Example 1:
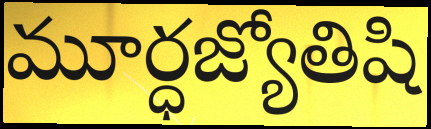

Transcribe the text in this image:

మూర్ధజ్యోతిషి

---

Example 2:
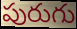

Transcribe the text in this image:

పురుగు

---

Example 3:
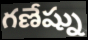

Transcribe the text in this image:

గణేష్ను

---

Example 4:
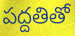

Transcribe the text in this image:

పద్దతితో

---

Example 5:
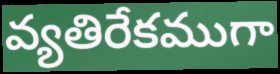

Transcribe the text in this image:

వ్యతిరేకముగా